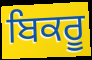
ਬਿਕਰੂ